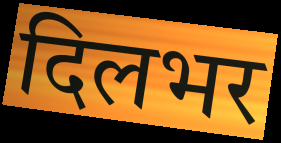
दिलभर